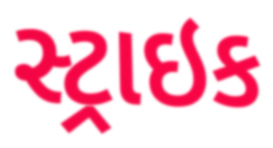
સ્ટ્રાઇક